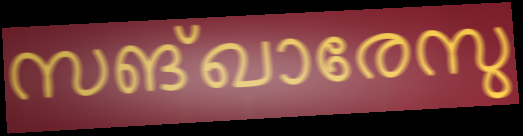
സങ്ഖാരേസു